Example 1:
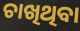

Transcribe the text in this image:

ଚାଖିଥିବା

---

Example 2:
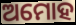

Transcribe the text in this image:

ଅମୋହ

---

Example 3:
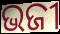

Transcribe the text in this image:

ଭଜୀ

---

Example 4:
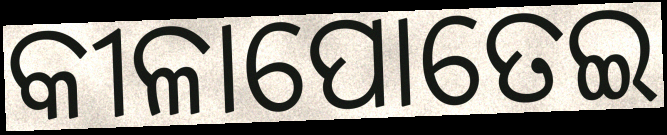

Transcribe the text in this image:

କୀଳାପୋତେଇ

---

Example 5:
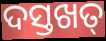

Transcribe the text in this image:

ଦସ୍ତଖତ୍